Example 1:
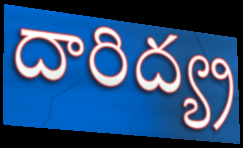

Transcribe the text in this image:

దారిద్య్ర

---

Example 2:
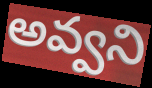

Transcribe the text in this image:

అవ్వని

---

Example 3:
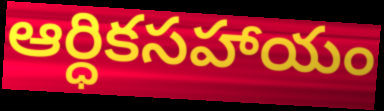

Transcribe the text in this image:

ఆర్ధికసహాయం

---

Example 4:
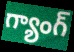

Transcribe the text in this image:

గ్యాంగ్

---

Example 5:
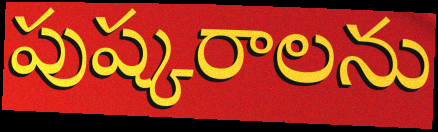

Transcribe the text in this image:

పుష్కరాలను